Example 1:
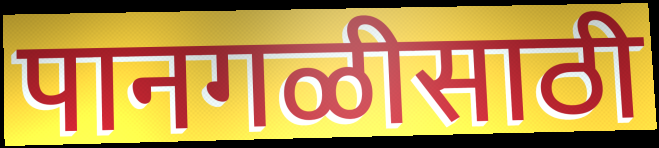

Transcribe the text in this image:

पानगळीसाठी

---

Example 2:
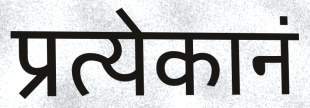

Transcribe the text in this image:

प्रत्येकानं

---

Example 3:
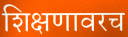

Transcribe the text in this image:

शिक्षणावरच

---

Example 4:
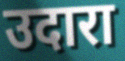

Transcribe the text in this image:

उदारा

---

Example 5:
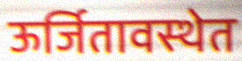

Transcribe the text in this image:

ऊर्जितावस्थेत